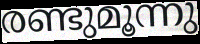
രണ്ടുമൂന്നു